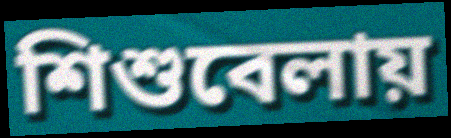
শিশুবেলায়